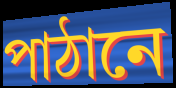
পাঠানে